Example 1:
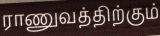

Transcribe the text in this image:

ராணுவத்திற்கும்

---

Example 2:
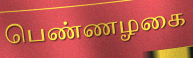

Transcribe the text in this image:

பெண்ணழகை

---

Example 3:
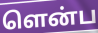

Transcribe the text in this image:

ளென்ப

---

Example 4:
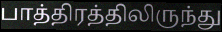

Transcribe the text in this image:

பாத்திரத்திலிருந்து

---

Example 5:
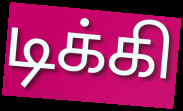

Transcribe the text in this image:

டிக்கி